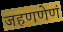
जहणणेणं